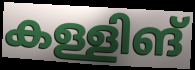
കള്ളിങ്